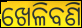
ଖେଳିବଣି